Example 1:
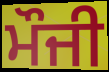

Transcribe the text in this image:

ਮੌਜੀ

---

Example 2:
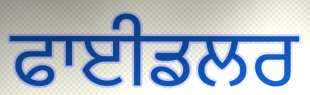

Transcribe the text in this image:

ਫਾਈਡਲਰ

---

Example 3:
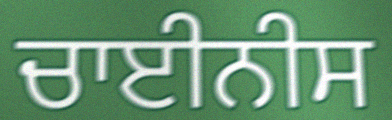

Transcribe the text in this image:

ਚਾਈਨੀਸ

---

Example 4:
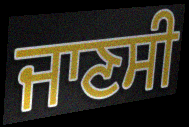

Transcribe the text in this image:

ਜਾਣਸੀ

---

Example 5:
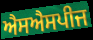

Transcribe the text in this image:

ਐਸਐਸਪੀਜ